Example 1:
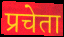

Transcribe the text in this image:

प्रचेता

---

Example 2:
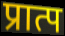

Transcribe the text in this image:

प्रात्प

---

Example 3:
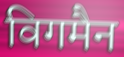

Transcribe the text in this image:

विगमैन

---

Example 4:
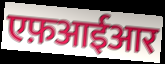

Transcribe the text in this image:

एफ़आईआर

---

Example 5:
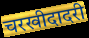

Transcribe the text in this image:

चरखीदादरी